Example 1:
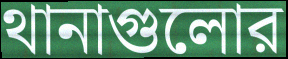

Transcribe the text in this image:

থানাগুলোর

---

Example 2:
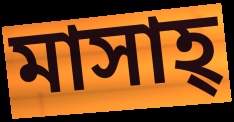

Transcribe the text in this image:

মাসাহ্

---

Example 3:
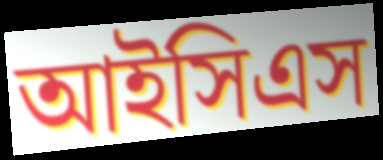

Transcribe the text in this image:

আইসিএস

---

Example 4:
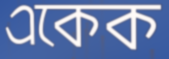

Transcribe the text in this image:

একেক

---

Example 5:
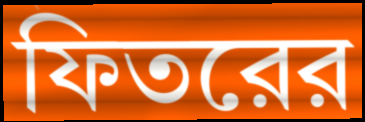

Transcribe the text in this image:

ফিতরের